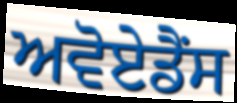
ਅਵੋਏਡੈਂਸ